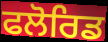
ਫਲੋਰਿਡ